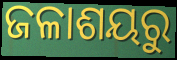
ଜଳାଶୟରୁ